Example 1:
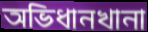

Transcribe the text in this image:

অভিধানখানা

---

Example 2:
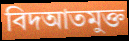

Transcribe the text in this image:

বিদআতমুক্ত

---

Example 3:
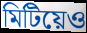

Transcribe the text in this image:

মিটিয়েও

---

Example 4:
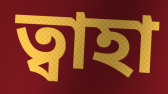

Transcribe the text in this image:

ত্বাহা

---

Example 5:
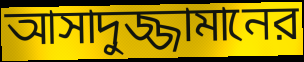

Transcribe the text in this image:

আসাদুজ্জামানের